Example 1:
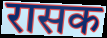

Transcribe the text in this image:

रासक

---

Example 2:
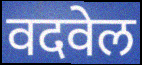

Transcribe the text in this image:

वदवेल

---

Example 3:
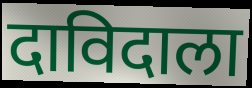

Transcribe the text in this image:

दाविदाला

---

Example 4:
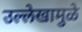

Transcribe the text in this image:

उल्लेखामुळे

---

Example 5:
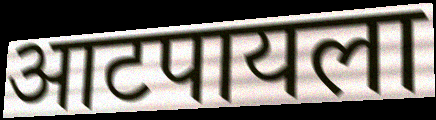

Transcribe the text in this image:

आटपायला